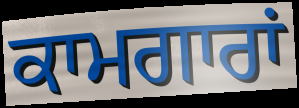
ਕਾਮਗਾਰਾਂ